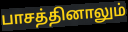
பாசத்தினாலும்